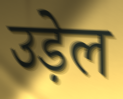
उड़ेल